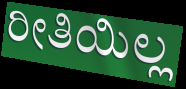
ರೀತಿಯಿಲ್ಲ